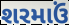
શરમાઉં